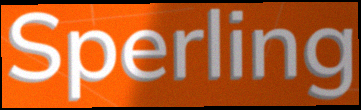
Sperling